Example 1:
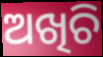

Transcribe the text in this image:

ଅଖିଚି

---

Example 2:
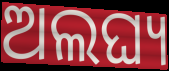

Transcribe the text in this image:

ଅଲଘ୍ୟ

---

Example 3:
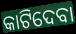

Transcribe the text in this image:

କାଟିଦେବା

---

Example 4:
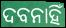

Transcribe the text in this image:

ଦବନାହିଁ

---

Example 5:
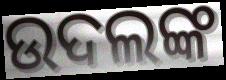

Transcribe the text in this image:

ଉଦଲଙ୍କ